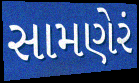
સામણેરં